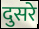
दुसरे